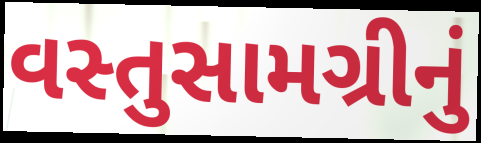
વસ્તુસામગ્રીનું